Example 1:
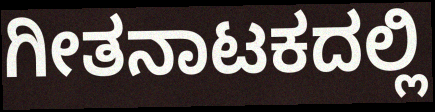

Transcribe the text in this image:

ಗೀತನಾಟಕದಲ್ಲಿ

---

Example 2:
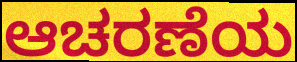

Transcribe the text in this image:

ಆಚರಣೆಯ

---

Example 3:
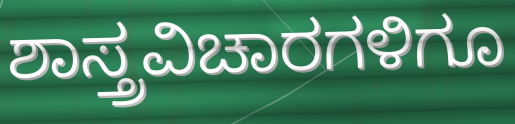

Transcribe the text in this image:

ಶಾಸ್ತ್ರವಿಚಾರಗಳಿಗೂ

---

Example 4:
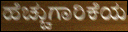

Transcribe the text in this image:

ಹೆಚ್ಚುಗಾರಿಕೆಯ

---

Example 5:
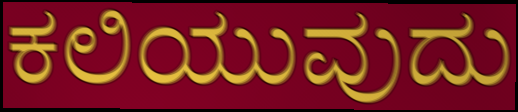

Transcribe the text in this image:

ಕಲಿಯುವುದು